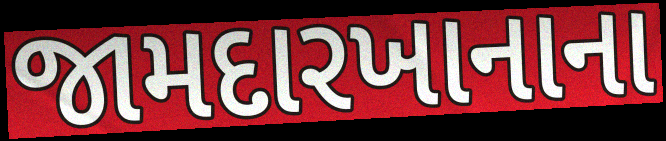
જામદારખાનાના